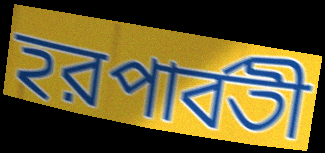
হরপার্বতী